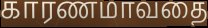
காரணமாவதை